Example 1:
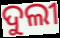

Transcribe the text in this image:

ଦୁଲୀ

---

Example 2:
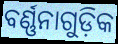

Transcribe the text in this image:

ବର୍ଣ୍ଣନାଗୁଡ଼ିକ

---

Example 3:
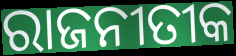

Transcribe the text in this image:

ରାଜନୀତୀକ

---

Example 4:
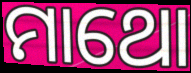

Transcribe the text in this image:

ମାଥୋ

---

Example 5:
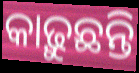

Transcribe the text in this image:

କାଢ଼ୁଛନ୍ତି